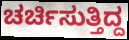
ಚರ್ಚಿಸುತ್ತಿದ್ದ